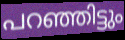
പറഞ്ഞിട്ടും